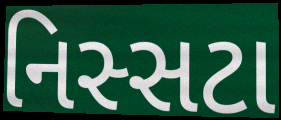
નિસ્સટા